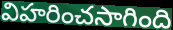
విహరించసాగింది